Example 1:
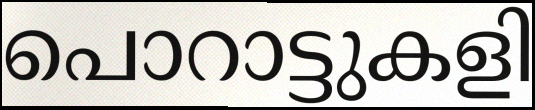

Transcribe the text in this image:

പൊറാട്ടുകളി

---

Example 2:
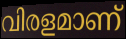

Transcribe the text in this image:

വിരളമാണ്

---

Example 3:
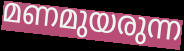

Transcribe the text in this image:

മണമുയരുന്ന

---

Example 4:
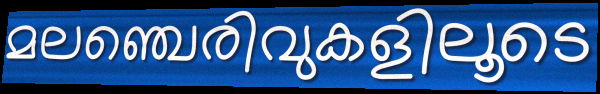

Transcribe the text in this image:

മലഞ്ചെരിവുകളിലൂടെ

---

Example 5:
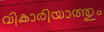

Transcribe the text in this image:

വികാരിയാത്തും